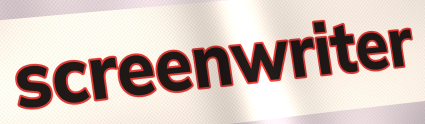
screenwriter